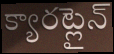
క్యారట్లైన్